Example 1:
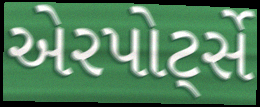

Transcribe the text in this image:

એરપોર્ટ્સે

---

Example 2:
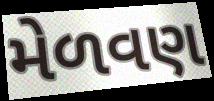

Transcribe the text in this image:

મેળવણ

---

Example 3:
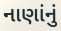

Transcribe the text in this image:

નાણાંનું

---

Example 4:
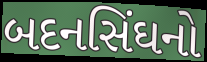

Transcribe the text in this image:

બદનસિંઘનો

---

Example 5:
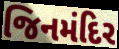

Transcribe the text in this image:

જિનમંદિર